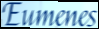
Eumenes